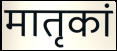
मातृकां